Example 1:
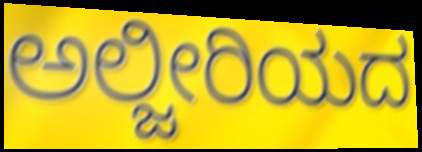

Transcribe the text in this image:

ಅಲ್ಜೀರಿಯದ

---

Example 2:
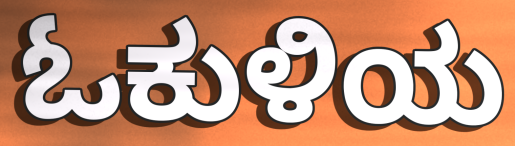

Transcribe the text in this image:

ಓಕುಳಿಯ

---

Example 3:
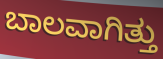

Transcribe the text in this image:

ಬಾಲವಾಗಿತ್ತು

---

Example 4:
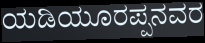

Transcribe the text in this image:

ಯಡಿಯೂರಪ್ಪನವರ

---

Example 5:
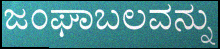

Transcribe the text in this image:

ಜಂಘಾಬಲವನ್ನು